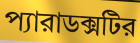
প্যারাডক্সটির